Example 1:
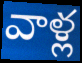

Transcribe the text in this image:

వాళ్ల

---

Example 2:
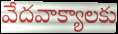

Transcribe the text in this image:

వేదవాక్యాలకు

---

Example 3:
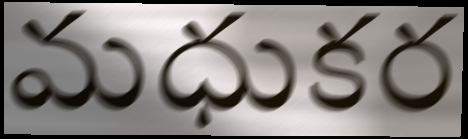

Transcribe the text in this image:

మధుకర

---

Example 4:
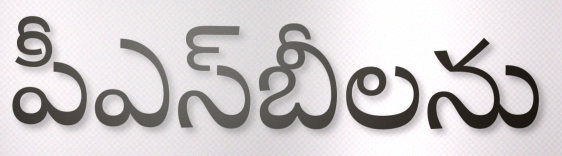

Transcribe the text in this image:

పీఎస్‌బీలను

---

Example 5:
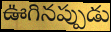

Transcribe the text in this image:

ఊగినప్పుడు